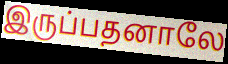
இருப்பதனாலே